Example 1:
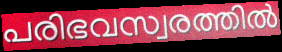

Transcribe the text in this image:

പരിഭവസ്വരത്തിൽ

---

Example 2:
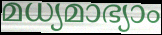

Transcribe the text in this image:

മധ്യമാഭ്യാം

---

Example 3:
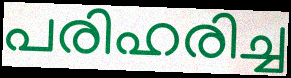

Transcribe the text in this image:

പരിഹരിച്ച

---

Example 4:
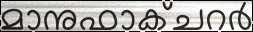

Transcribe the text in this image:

മാനുഫാക്ചറർ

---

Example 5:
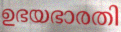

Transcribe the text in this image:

ഉഭയഭാരതി